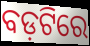
ବଡ଼ଟିରେ